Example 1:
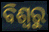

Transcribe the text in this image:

ବିଶ୍ଵରୁ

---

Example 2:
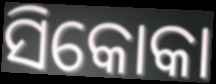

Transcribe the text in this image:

ସିକୋକା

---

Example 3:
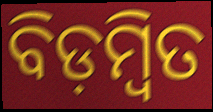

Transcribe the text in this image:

ବିଡ଼ମ୍ଵିତ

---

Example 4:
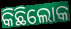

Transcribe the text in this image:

କିଛିଲୋକ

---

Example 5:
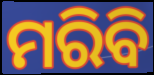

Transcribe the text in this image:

ମରିବି